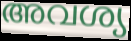
അവശ്യ